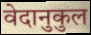
वेदानुकुल